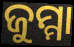
ଜୁମ୍ମା